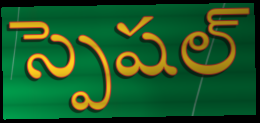
స్పెషల్